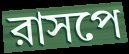
রাসপে